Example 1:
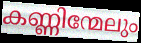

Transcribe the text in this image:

കണ്ണിന്മേലും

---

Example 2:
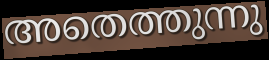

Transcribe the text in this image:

അതെത്തുന്നു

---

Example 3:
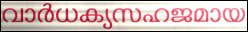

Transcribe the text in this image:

വാർധക്യസഹജമായ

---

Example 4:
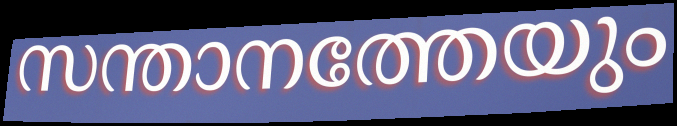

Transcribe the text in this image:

സന്താനത്തേയും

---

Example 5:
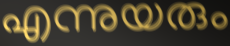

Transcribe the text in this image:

എന്നുയരും